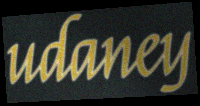
udaney